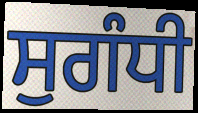
ਸੁਗੰਧੀ